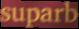
suparb